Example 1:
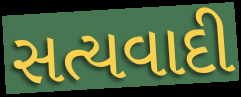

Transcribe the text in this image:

સત્યવાદી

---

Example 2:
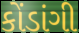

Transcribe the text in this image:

કોંડાંગી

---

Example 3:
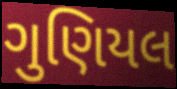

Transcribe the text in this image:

ગુણિયલ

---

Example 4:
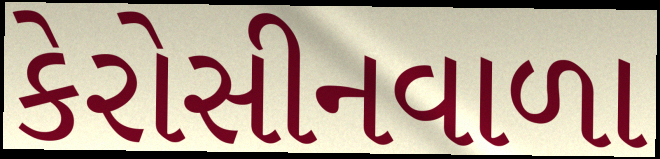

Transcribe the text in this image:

કેરોસીનવાળા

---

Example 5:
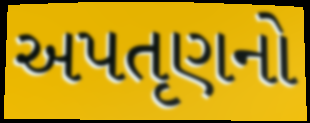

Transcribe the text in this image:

અપતૃણનો